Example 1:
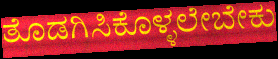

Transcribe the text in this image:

ತೊಡಗಿಸಿಕೊಳ್ಳಲೇಬೇಕು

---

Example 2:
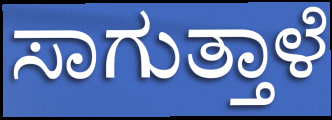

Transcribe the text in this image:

ಸಾಗುತ್ತಾಳೆ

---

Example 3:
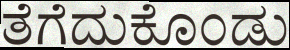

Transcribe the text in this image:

ತೆಗೆದುಕೊಂಡು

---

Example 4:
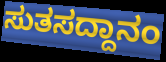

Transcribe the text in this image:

ಸುತಸದ್ದಾನಂ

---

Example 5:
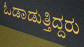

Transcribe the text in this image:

ಓಡಾಡುತ್ತಿದ್ದರು